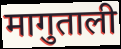
मागुताली